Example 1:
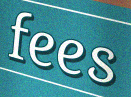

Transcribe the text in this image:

fees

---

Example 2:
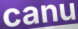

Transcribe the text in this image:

canu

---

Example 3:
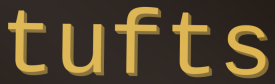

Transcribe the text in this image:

tufts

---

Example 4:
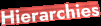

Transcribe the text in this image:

Hierarchies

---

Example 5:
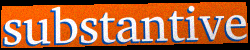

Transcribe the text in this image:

substantive